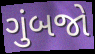
ગુંબજો